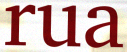
rua